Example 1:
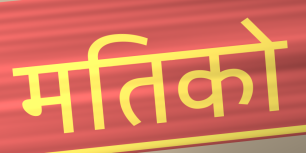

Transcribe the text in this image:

मतिको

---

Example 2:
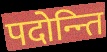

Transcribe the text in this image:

पदोन्न्ति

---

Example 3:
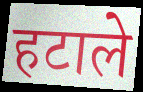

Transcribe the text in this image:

हटाले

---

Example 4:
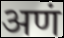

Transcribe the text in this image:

अणं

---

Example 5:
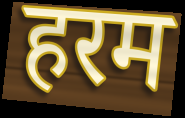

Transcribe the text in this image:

हरम